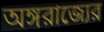
অঙ্গরাজ্যের